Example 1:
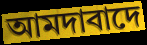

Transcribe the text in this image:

আমদাবাদে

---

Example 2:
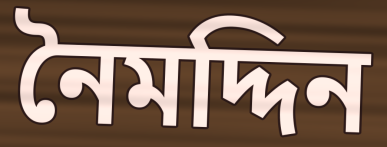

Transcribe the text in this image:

নৈমদ্দিন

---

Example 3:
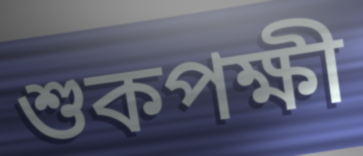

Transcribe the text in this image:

শুকপক্ষী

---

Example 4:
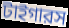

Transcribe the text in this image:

টাইগারস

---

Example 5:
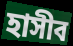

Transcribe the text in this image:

হাসীব